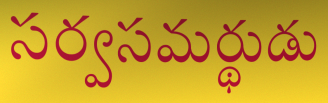
సర్వసమర్థుడు